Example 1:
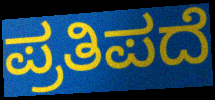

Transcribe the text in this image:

ಪ್ರತಿಪದೆ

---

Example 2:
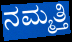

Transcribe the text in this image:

ನಮ್ಮತ್ತಿ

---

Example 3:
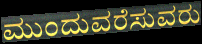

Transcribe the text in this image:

ಮುಂದುವರೆಸುವರು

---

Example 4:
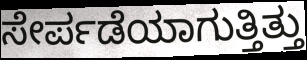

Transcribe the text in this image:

ಸೇರ್ಪಡೆಯಾಗುತ್ತಿತ್ತು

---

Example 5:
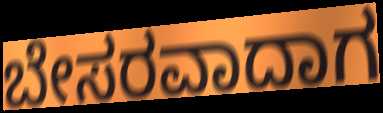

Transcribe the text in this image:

ಬೇಸರವಾದಾಗ